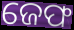
ଜେଫ